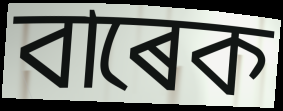
বাৰেক